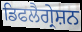
ਡਿਫਲੈਗ੍ਰੇਸ਼ਨ